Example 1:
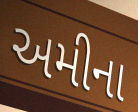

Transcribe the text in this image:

અમીના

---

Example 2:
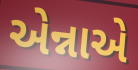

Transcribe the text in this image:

એન્નાએ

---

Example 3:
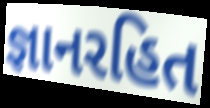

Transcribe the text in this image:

જ્ઞાનરહિત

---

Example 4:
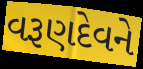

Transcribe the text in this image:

વરૂણદેવને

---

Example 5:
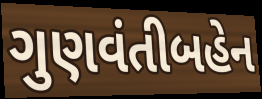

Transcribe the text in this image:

ગુણવંતીબહેન